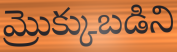
మ్రొక్కుబడిని